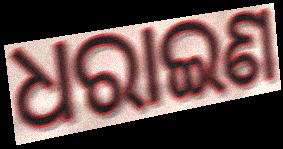
ଧରାଇଣ